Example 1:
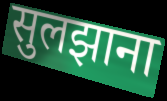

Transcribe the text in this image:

सुलझाना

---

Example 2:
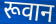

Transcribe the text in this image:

रूवान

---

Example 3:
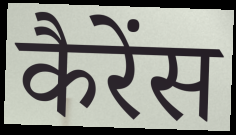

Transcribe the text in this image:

कैरेंस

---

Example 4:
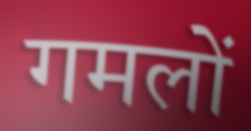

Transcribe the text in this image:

गमलों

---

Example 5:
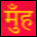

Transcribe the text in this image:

मुँह